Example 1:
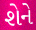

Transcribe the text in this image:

શેને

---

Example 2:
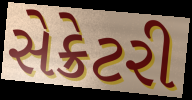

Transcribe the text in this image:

સેક્રેટરી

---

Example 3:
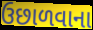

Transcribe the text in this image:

ઉછાળવાના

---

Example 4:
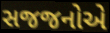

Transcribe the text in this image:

સજજનોએ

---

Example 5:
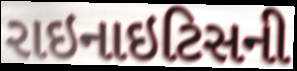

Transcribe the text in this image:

રાઇનાઇટિસની